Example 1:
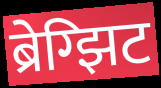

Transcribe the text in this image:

ब्रेग्झिट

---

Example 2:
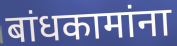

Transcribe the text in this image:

बांधकामांना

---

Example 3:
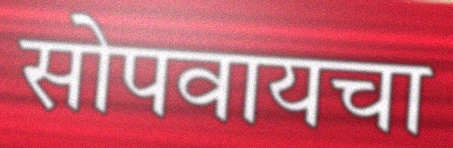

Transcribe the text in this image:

सोपवायचा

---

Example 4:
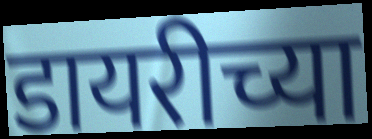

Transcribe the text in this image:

डायरीच्या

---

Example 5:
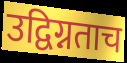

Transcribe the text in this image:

उद्विग्नताच